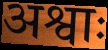
अश्वाः